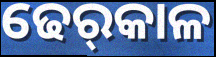
ଢେର୍‌କାଳ